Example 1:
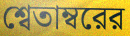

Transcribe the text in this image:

শ্বেতাম্বরের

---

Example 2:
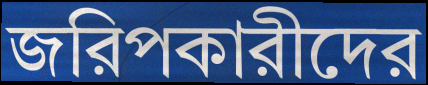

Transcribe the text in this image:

জরিপকারীদের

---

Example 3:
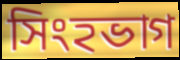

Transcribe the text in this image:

সিংহভাগ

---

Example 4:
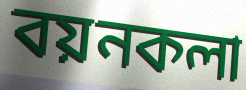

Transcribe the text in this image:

বয়নকলা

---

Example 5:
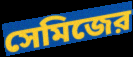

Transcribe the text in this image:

সেমিজের